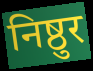
निष्ठुर